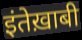
इंतेख़ाबी